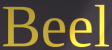
Beel